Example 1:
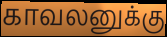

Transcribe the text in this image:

காவலனுக்கு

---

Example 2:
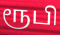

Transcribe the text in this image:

ரூபி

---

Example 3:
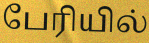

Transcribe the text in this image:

பேரியில்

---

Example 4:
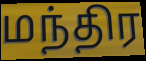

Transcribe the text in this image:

மந்திர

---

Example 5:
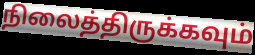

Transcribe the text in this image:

நிலைத்திருக்கவும்